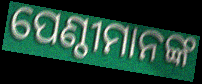
ପେଣ୍ଠୀମାନଙ୍କ